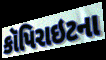
કૉપિરાઇટના